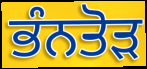
ਭੰਨਤੋੜ